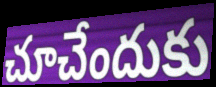
చూచేందుకు